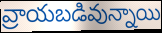
వ్రాయబడివున్నాయి